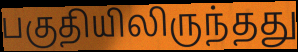
பகுதியிலிருந்தது